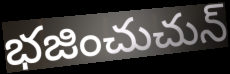
భజించుచున్